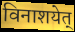
विनाशयेत्